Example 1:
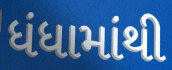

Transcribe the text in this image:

ધંધામાંથી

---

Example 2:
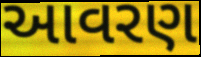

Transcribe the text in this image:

આવરણ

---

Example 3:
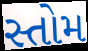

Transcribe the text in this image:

સ્તોમ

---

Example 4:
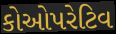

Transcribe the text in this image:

કોઓપરેટિવ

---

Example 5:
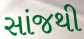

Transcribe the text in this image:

સાંજથી